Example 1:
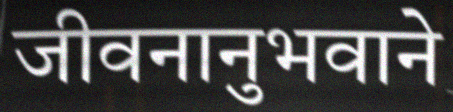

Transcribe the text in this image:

जीवनानुभवाने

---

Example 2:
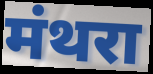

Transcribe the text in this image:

मंथरा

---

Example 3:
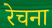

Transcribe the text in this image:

रेचना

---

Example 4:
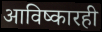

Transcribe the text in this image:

आविष्कारही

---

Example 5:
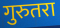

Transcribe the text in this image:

गुरुतरा